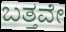
ಬತ್ತವೇ